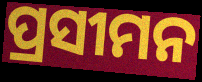
ପ୍ରସୀମନ